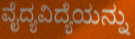
ವೈದ್ಯವಿದ್ಯೆಯನ್ನು